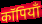
कॉपियाँ